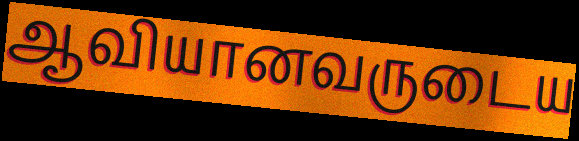
ஆவியானவருடைய